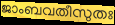
ജാംബവതീസുതഃ